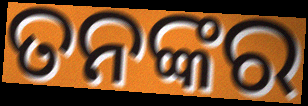
ତନଙ୍କର